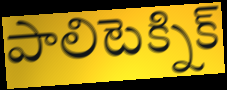
పాలిటెక్నిక్